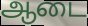
ஆடை